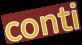
conti